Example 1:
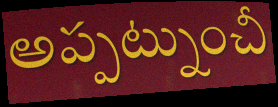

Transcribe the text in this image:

అప్పట్నుంచీ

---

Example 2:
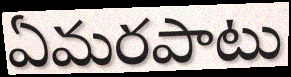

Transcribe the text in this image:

ఏమరపాటు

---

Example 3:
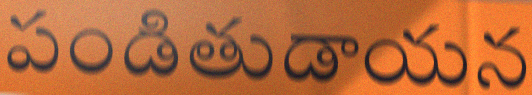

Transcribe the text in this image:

పండితుడాయన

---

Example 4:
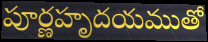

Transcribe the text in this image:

పూర్ణహృదయముతో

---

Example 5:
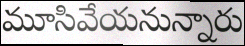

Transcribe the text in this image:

మూసివేయనున్నారు